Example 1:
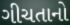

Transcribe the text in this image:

ગીચતાનો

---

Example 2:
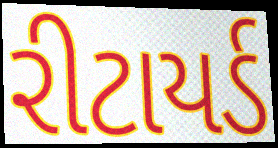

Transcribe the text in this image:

રીટાયર્ડ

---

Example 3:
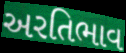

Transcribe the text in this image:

અરતિભાવ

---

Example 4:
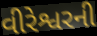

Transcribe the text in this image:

વીરેશ્વરની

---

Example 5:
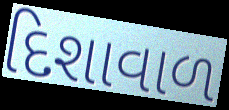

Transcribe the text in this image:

દિશાવાળ